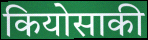
कियोसाकी